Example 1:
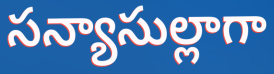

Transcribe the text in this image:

సన్యాసుల్లాగా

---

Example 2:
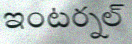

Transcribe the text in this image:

ఇంటర్నల్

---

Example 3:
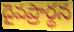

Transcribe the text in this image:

దైవప్రార్థన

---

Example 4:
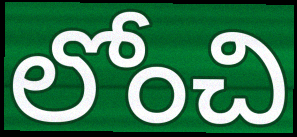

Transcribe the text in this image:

లోంచి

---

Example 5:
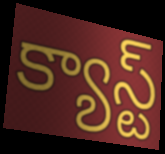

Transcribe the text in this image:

క్యాస్ట్